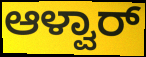
ಆಳ್ವಾರ್